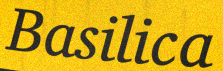
Basilica